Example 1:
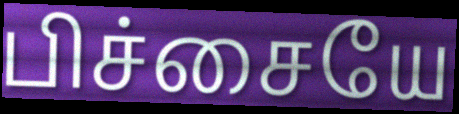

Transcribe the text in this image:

பிச்சையே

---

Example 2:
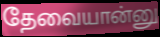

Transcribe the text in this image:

தேவையான்னு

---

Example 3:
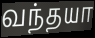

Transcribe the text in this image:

வந்தயா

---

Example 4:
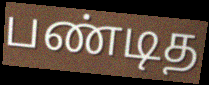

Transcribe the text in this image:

பண்டித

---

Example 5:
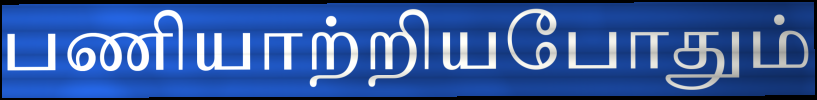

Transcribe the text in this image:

பணியாற்றியபோதும்